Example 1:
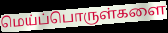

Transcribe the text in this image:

மெய்ப்பொருள்களை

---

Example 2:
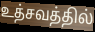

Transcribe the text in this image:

உத்சவத்தில்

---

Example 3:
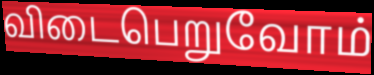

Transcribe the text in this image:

விடைபெறுவோம்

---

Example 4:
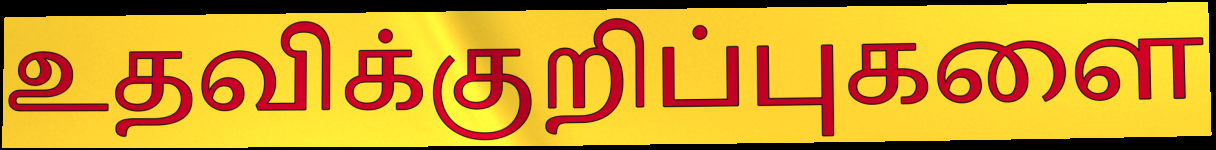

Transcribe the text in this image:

உதவிக்குறிப்புகளை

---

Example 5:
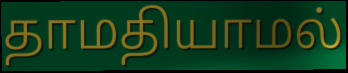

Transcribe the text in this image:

தாமதியாமல்